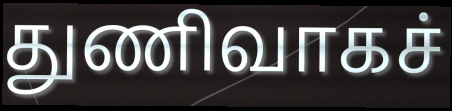
துணிவாகச்